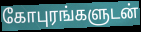
கோபுரங்களுடன்